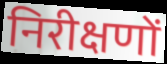
निरीक्षणों